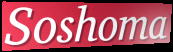
Soshoma